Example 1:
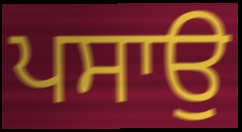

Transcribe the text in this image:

ਪਸਾਉ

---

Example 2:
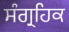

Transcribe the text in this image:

ਸੰਗ੍ਰਹਿਕ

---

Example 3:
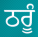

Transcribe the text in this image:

ਠਰੂੰ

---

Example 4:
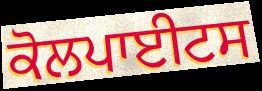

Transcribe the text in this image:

ਕੋਲਪਾਈਟਸ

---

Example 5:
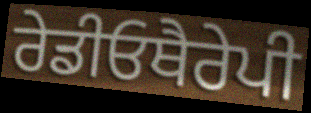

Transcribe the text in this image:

ਰੇਡੀਓਥੈਰੇਪੀ